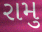
રામુ